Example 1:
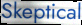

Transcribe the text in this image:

Skeptical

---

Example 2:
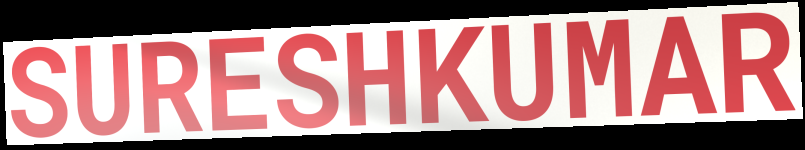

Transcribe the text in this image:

SURESHKUMAR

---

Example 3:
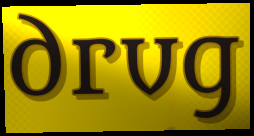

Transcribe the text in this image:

drug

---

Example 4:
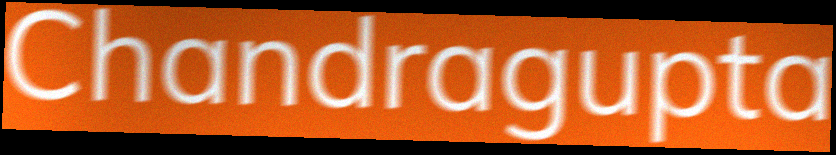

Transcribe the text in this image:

Chandragupta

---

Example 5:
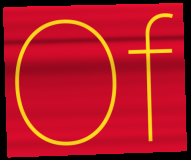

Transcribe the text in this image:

Of